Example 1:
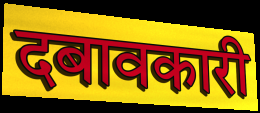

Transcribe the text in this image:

दबावकारी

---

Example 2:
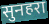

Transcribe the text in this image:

सुनहरा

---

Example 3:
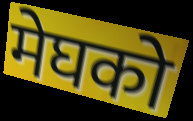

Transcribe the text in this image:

मेघको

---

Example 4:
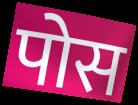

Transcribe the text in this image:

पोस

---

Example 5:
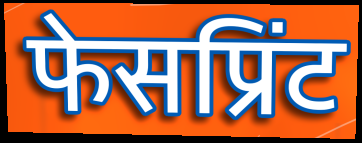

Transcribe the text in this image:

फेसप्रिंट